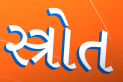
સ્ત્રોત